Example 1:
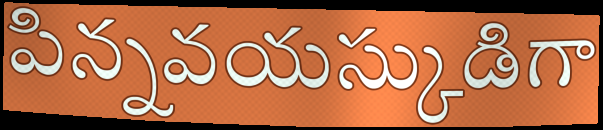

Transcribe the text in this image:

పిన్నవయస్కుడిగా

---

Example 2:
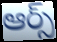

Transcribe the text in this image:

ఆర్స్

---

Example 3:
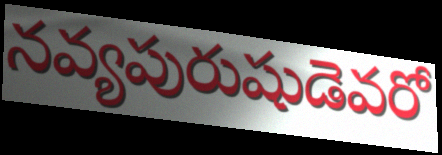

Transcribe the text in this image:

నవ్యపురుషుడెవరో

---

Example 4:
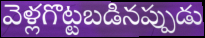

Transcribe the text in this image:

వెళ్లగొట్టబడినప్పుడు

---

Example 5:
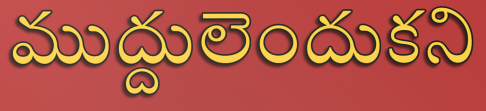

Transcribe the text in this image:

ముద్దులెందుకని